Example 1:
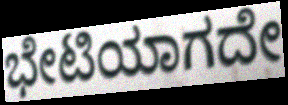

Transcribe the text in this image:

ಭೇಟಿಯಾಗದೇ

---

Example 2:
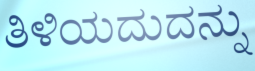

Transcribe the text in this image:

ತಿಳಿಯದುದನ್ನು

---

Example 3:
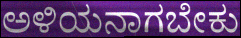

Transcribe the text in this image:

ಅಳಿಯನಾಗಬೇಕು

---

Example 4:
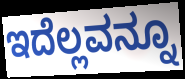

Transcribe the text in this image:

ಇದೆಲ್ಲವನ್ನೂ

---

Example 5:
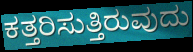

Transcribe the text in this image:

ಕತ್ತರಿಸುತ್ತಿರುವುದು